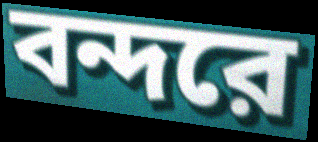
বন্দরে